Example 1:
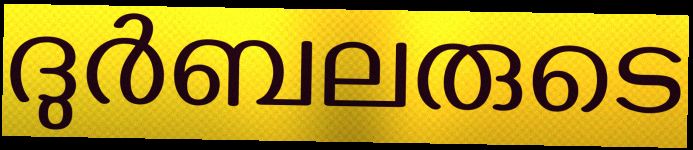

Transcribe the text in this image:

ദുർബലരുടെ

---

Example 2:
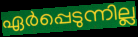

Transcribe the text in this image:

ഏർപ്പെടുന്നില്ല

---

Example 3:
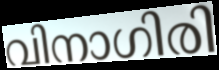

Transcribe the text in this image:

വിനാഗിരി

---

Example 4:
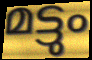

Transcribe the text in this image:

മട്ടും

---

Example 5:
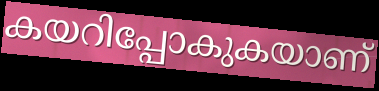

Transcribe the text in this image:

കയറിപ്പോകുകയാണ്